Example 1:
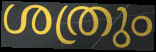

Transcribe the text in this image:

ശത്രും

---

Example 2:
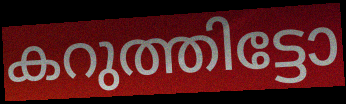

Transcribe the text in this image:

കറുത്തിട്ടോ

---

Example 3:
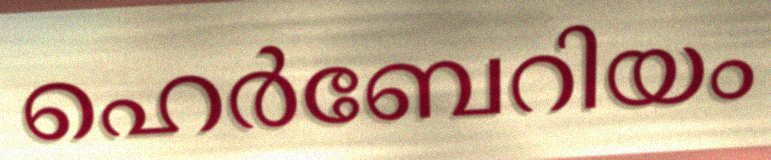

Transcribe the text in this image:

ഹെർബേറിയം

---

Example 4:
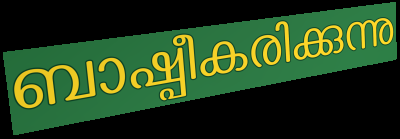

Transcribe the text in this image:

ബാഷ്പീകരിക്കുന്നു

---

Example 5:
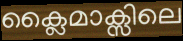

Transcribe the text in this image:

ക്ലൈമാക്സിലെ